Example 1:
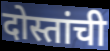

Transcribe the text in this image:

दोस्तांची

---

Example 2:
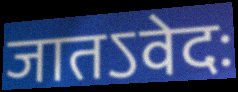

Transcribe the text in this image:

जातऽवेदः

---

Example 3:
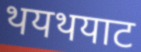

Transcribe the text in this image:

थयथयाट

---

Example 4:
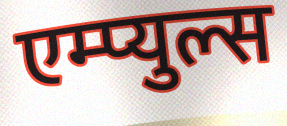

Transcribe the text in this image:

एम्प्युल्स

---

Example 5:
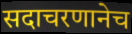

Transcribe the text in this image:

सदाचरणानेच